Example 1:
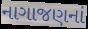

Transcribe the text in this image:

નાગાજણનાં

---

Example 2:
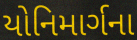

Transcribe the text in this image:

યોનિમાર્ગના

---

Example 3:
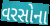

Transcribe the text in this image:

વરસોના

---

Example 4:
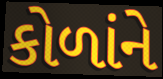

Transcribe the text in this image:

કોળાંને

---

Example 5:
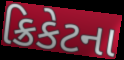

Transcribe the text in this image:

ક્રિકેટના